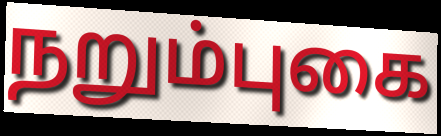
நறும்புகை